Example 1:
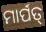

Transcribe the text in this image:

ମାର୍ପତ୍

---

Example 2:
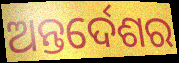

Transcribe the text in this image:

ଅନ୍ତର୍ଦେଶର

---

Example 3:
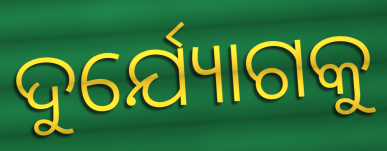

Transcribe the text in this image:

ଦୁର୍ଯ୍ୟୋଗକୁ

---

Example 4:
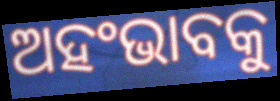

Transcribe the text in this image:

ଅହଂଭାବକୁ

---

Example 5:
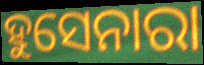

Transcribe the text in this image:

ହୁସେନାରା